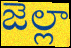
జెల్లా